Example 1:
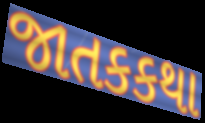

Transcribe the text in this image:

જાતકકથા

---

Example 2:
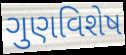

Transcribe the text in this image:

ગુણવિશેષ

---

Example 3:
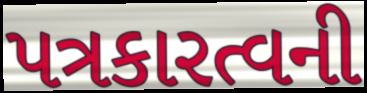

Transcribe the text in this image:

પત્રકારત્વની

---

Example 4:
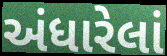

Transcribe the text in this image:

અંધારેલાં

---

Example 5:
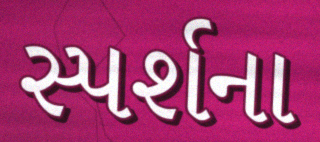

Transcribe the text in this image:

સ્પર્શના